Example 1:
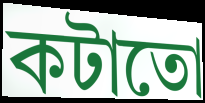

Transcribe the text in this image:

কটাতো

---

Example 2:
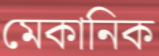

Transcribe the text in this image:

মেকানিক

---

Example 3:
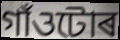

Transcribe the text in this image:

গাঁওটোৰ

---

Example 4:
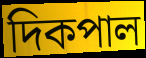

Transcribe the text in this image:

দিকপাল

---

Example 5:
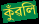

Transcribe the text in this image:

কুঁৱলি